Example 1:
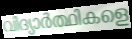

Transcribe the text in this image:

വിദ്യാർത്ഥികളെ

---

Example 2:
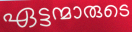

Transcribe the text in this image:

ഏട്ടന്മാരുടെ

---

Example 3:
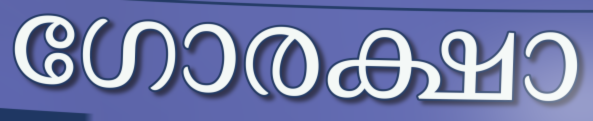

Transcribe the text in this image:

ഗോരക്ഷാ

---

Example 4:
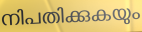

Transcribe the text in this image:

നിപതിക്കുകയും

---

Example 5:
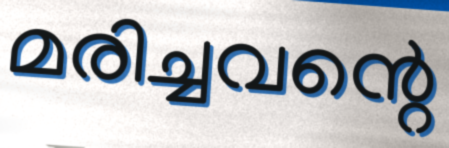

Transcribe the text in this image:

മരിച്ചവന്റെ